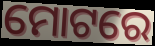
ମୋଟରେ